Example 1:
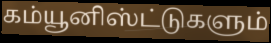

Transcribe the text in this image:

கம்யூனிஸ்ட்டுகளும்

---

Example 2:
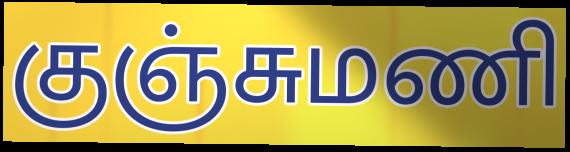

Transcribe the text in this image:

குஞ்சுமணி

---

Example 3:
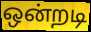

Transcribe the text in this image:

ஒன்றடி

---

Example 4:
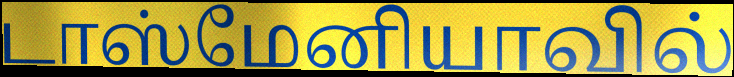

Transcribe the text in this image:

டாஸ்மேனியாவில்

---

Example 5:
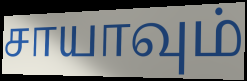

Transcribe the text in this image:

சாயாவும்